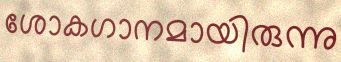
ശോകഗാനമായിരുന്നു